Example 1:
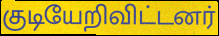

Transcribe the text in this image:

குடியேறிவிட்டனர்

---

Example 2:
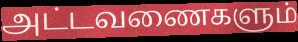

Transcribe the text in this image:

அட்டவணைகளும்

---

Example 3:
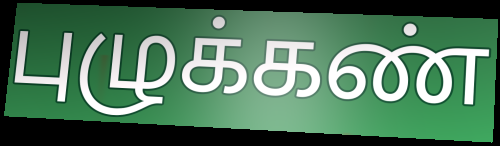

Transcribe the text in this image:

புழுக்கண்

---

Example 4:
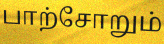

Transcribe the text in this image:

பாற்சோறும்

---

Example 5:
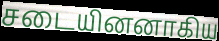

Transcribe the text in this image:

சடையினனாகிய